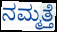
ನಮ್ಮತ್ತೆ